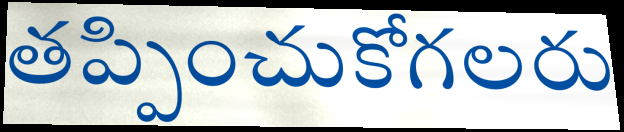
తప్పించుకోగలరు